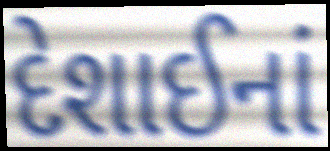
દેશાઈનાં